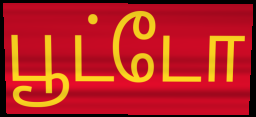
பூட்டோ